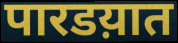
पारडय़ात